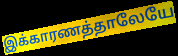
இக்காரணத்தாலேயே